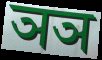
ञञ